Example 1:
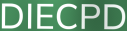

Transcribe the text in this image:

DIECPD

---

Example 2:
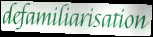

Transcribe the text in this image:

defamiliarisation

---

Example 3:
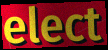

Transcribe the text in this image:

elect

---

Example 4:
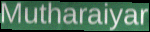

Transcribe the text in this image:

Mutharaiyar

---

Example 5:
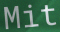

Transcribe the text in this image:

Mit